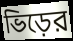
ভিড়ের